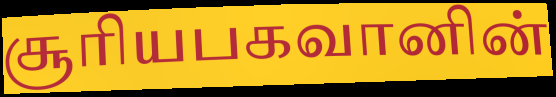
சூரியபகவானின்